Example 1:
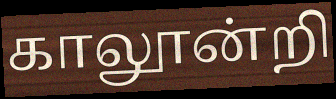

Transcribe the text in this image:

காலூன்றி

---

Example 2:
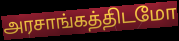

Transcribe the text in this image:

அரசாங்கத்திடமோ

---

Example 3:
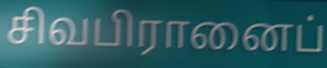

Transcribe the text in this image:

சிவபிரானைப்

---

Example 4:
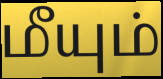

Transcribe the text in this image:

மீயும்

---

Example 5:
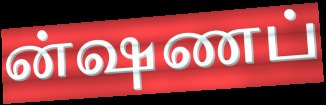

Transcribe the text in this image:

ன்ஷணப்